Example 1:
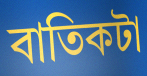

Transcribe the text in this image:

বাতিকটা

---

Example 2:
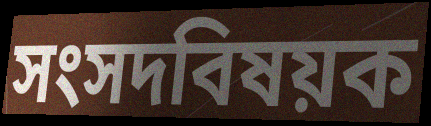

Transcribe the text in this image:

সংসদবিষয়ক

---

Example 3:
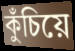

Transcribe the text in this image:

কুঁচিয়ে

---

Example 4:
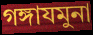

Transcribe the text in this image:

গঙ্গাযমুনা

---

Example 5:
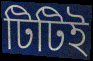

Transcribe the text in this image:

টিটিই